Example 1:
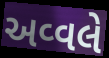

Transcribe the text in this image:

અવ્વલે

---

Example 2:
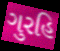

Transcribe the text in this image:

ગુરહિ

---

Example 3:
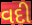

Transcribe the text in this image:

વદી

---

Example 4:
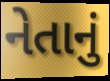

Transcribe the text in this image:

નેતાનું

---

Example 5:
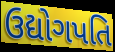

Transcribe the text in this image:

ઉદ્યોગપતિ